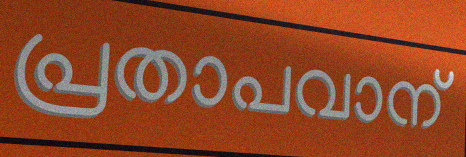
പ്രതാപവാന്